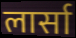
लार्सा